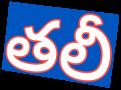
తలీ